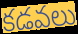
కడవలు